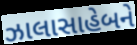
ઝાલાસાહેબને